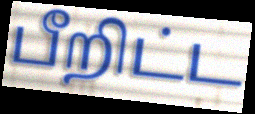
பீறிட்ட